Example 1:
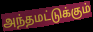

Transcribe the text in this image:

அந்தமட்டுக்கும்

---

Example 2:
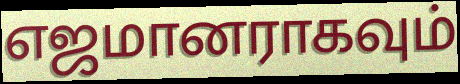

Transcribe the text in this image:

எஜமானராகவும்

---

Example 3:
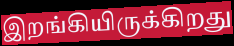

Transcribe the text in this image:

இறங்கியிருக்கிறது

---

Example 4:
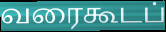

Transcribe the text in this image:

வரைகூடப்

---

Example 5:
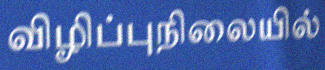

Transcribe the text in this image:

விழிப்புநிலையில்